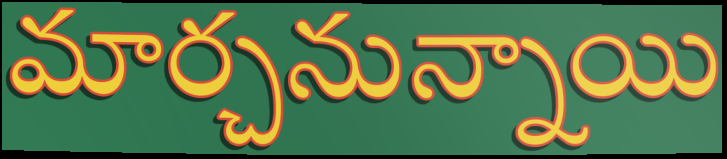
మార్చనున్నాయి